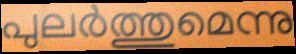
പുലർത്തുമെന്നു